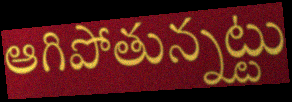
ఆగిపోతున్నట్టు